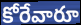
కోరేవారూ